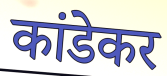
कांडेकर